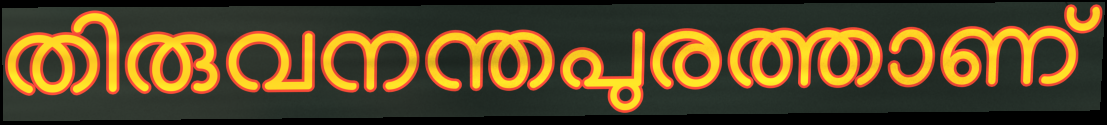
തിരുവനന്തപുരത്താണ്